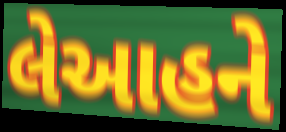
લેઆહને